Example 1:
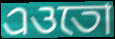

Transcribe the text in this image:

এওতো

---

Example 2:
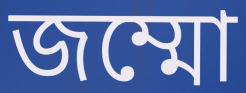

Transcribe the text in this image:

জম্মো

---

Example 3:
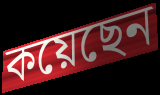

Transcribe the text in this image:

কয়েছেন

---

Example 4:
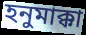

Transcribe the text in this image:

হনুমাক্কা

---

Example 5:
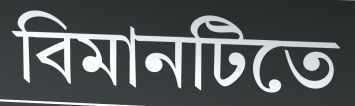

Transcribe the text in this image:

বিমানটিতে